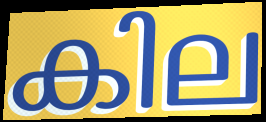
കില